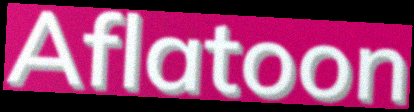
Aflatoon